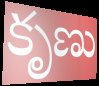
కృణు